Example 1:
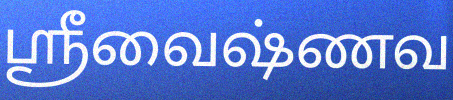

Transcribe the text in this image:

ஸ்ரீவைஷ்ணவ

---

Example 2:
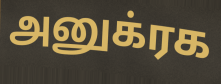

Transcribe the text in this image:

அனுக்ரக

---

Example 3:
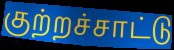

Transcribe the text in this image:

குற்றச்சாட்டு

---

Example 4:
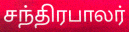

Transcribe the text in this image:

சந்திரபாலர்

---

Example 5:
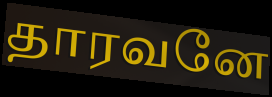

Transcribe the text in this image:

தாரவனே